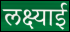
लक्ष्याई